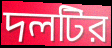
দলটির